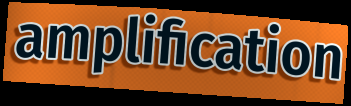
amplification